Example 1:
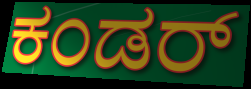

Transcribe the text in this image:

ಕಂಡರ್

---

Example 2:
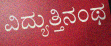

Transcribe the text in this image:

ವಿದ್ಯುತ್ತಿನಂಥ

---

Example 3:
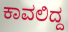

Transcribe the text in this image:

ಕಾವಲಿದ್ದ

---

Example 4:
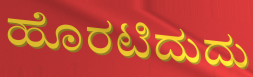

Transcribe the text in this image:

ಹೊರಟಿದುದು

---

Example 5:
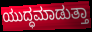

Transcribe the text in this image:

ಯುದ್ಧಮಾಡುತ್ತಾ